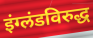
इंग्लंडविरुद्ध